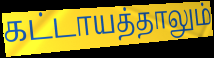
கட்டாயத்தாலும்